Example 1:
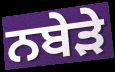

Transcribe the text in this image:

ਨਬੇੜੇ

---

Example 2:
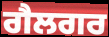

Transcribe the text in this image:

ਗੈਲਗਰ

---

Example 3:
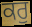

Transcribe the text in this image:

ਕਰੁ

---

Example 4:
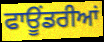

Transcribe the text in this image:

ਫਾਊਂਡਰੀਆਂ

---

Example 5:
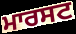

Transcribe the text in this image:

ਮਾਰਸਟ